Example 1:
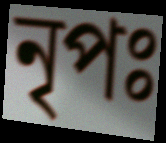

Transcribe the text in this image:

নৃপঃ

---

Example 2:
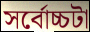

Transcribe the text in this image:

সর্বোচ্চটা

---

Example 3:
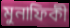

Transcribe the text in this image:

মুনাফিকী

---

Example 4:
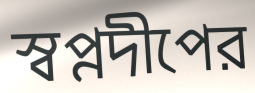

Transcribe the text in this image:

স্বপ্নদীপের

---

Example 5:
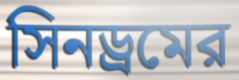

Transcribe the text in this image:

সিনড্রমের